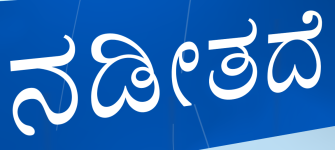
ನಡೀತದೆ